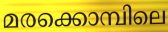
മരക്കൊമ്പിലെ